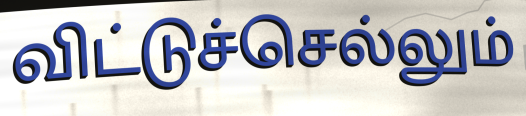
விட்டுச்செல்லும்